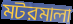
মটরমালা